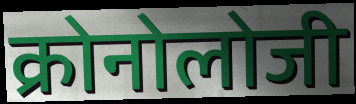
क्रोनोलोजी